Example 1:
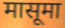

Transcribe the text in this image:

मासूमा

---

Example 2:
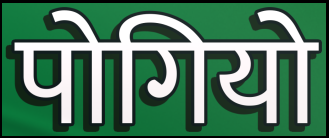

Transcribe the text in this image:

पोगियो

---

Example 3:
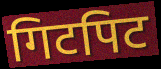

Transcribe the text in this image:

गिटपिट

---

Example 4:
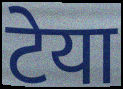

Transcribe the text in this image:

टेया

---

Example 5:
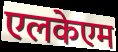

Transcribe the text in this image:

एलकेएम